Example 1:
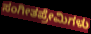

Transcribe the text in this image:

ಸಂಗೀತಪ್ರೇಮಿಗಳು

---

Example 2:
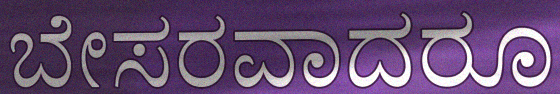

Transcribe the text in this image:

ಬೇಸರವಾದರೂ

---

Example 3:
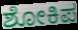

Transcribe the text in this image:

ಶೋಕಿಪ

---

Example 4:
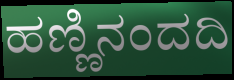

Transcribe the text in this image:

ಹಣ್ಣಿನಂದದಿ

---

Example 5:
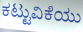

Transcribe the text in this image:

ಕಟ್ಟುವಿಕೆಯು